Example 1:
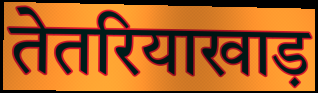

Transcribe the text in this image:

तेतरियाखाड़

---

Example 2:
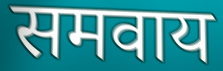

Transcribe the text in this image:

समवाय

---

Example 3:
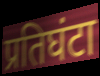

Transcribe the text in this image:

प्रतिघंटा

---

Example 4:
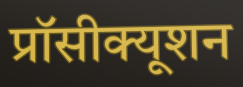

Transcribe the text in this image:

प्रॉसीक्यूशन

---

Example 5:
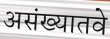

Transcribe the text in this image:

असंख्यातवे